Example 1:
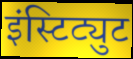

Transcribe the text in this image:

इंस्टिट्युट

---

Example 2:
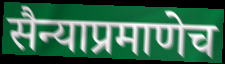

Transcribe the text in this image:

सैन्याप्रमाणेच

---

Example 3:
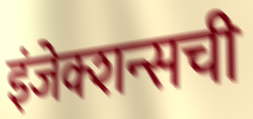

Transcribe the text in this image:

इंजेक्शन्सची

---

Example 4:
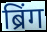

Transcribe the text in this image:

ब्रिंग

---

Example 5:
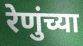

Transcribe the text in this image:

रेणुंच्या